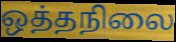
ஒத்தநிலை